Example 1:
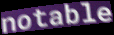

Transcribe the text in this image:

notable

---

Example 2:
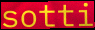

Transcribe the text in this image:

sotti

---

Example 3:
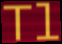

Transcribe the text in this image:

Tl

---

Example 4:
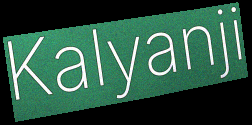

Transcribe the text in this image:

Kalyanji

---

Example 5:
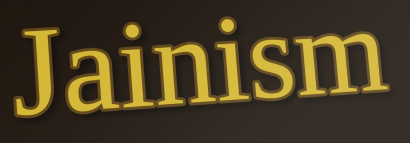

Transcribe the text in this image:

Jainism